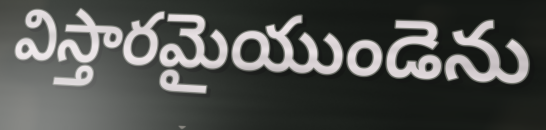
విస్తారమైయుండెను